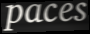
paces